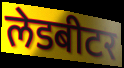
लेडबीटर